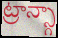
ట్రాన్స్గా